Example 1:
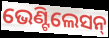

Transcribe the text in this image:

ଭେଣ୍ଟିଲେସନ୍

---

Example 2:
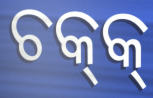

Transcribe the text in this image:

ଚକ୍‌କ୍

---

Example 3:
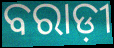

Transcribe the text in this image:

ବରାଡ଼ୀ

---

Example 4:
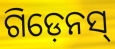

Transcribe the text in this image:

ଗିଡ଼େନସ୍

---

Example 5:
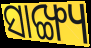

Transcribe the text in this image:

ସାଙ୍ଖ୍ୟ